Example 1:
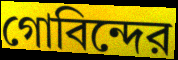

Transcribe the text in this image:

গোবিন্দের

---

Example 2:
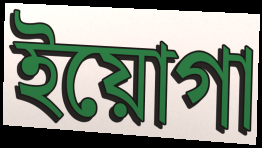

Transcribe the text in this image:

ইয়োগা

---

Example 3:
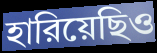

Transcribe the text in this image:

হারিয়েছিও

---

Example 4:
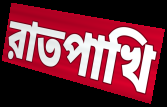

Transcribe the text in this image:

রাতপাখি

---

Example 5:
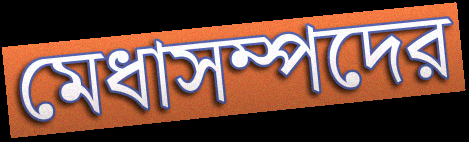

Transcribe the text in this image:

মেধাসম্পদের